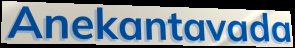
Anekantavada